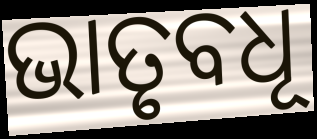
ଭାତୃବଧୂ